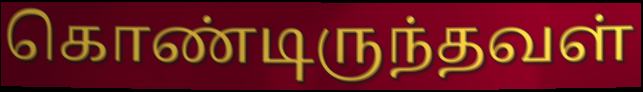
கொண்டிருந்தவள்